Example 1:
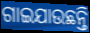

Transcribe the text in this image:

ଗାଇଯାଉଛନ୍ତି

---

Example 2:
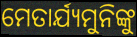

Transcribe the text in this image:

ମେତାର୍ଯ୍ୟମୁନିଙ୍କୁ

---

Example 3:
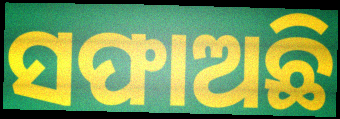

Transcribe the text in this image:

ସଫାଅଛି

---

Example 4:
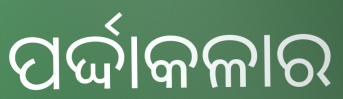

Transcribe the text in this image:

ପର୍ଦ୍ଦାକଳାର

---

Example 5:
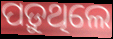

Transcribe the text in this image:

ପଡ଼ୁଥିଲେ